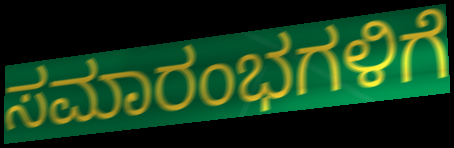
ಸಮಾರಂಭಗಳಿಗೆ